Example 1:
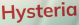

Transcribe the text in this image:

Hysteria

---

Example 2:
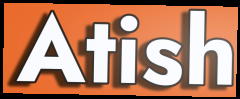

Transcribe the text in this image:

Atish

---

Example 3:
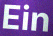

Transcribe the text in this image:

Ein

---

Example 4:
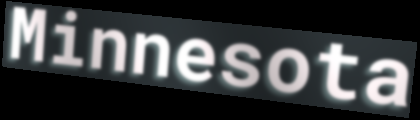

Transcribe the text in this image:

Minnesota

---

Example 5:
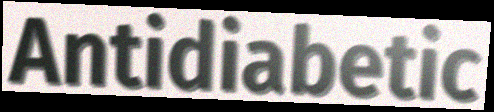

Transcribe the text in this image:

Antidiabetic